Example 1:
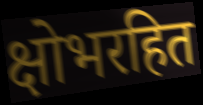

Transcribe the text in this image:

क्षोभरहित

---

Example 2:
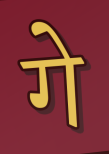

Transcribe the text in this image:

गे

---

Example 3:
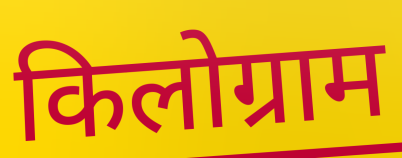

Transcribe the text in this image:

किलोग्राम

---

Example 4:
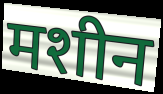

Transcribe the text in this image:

मशीन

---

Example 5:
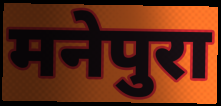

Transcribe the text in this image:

मनेपुरा